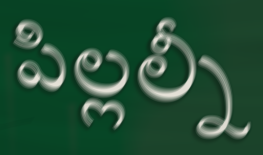
పిల్లల్నీ